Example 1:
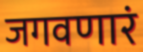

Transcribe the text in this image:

जगवणारं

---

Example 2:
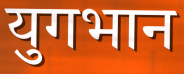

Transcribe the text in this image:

युगभान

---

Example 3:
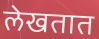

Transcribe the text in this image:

लेखतात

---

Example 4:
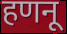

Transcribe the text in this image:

हणनू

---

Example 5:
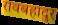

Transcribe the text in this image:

रावबहादुर